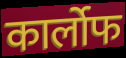
कार्लोफ